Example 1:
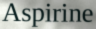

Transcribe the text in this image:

Aspirine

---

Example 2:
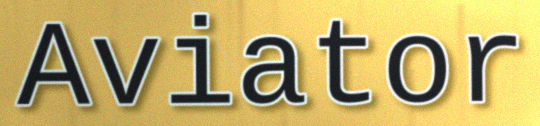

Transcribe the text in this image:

Aviator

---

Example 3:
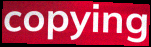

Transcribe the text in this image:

copying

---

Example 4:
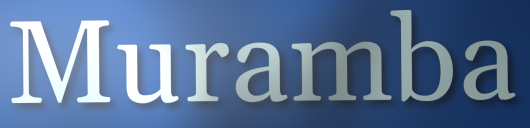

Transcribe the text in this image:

Muramba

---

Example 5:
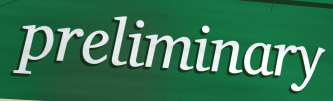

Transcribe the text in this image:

preliminary